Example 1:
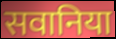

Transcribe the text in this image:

सवानिया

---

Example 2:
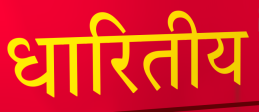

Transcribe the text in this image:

धारितीय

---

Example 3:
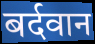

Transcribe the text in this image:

बर्दवान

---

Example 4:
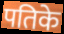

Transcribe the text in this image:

पतिके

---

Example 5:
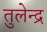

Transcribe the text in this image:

तुलेन्द्र